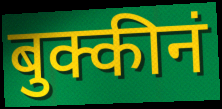
बुक्कीनं